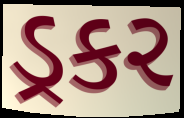
ડ્રકર